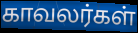
காவலர்கள்